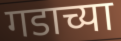
गडाच्या